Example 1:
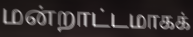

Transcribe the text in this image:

மன்றாட்டமாகக்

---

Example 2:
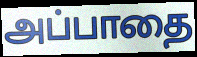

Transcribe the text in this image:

அப்பாதை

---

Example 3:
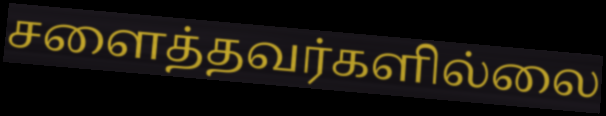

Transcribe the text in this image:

சளைத்தவர்களில்லை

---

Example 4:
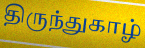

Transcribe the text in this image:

திருந்துகாழ்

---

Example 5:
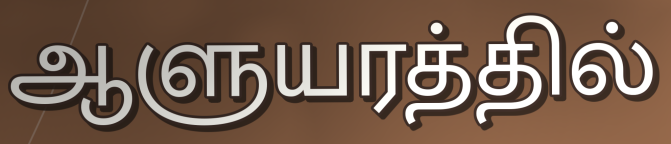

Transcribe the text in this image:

ஆளுயரத்தில்